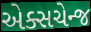
એક્સચેન્જ